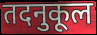
तदनुकूल